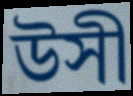
উসী